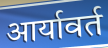
आर्यावर्त